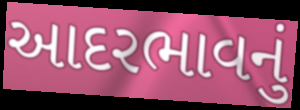
આદરભાવનું